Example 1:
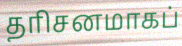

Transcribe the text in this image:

தரிசனமாகப்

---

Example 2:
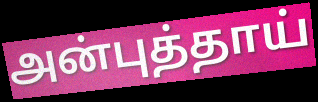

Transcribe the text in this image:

அன்புத்தாய்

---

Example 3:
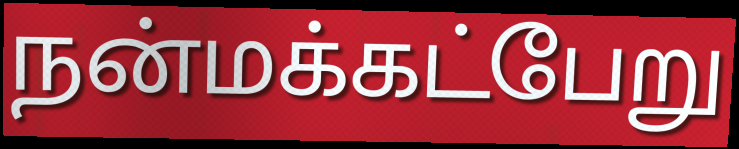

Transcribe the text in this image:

நன்மக்கட்பேறு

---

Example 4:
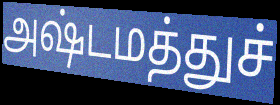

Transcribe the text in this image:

அஷ்டமத்துச்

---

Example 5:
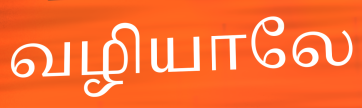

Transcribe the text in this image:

வழியாலே